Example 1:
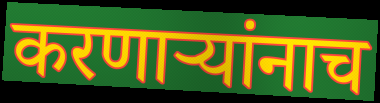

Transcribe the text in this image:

करणार्‍यांनाच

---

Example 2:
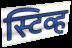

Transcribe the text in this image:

स्टिव्ह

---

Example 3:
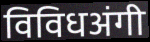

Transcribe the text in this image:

विविधअंगी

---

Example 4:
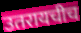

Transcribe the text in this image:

उतरायचीच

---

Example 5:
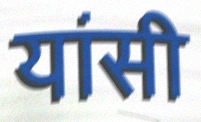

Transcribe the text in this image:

यांसी